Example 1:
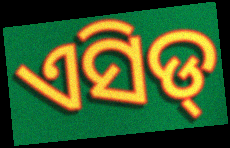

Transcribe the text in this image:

ଏସିଡ୍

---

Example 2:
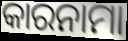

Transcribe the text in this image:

କାରନାମା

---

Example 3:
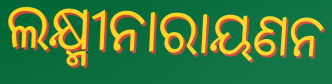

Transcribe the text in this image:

ଲକ୍ଷ୍ମୀନାରାୟଣନ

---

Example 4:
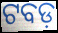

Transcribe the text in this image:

ଟବଡ଼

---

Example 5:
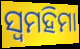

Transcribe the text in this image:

ସ୍ୱମହିମା